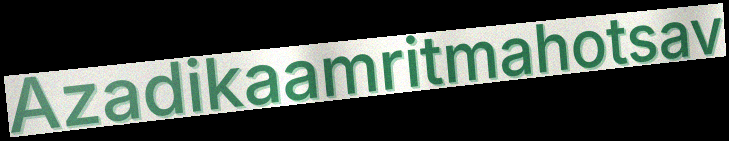
Azadikaamritmahotsav